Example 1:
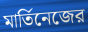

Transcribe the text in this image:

মার্তিনেজের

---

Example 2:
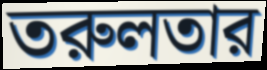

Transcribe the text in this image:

তরুলতার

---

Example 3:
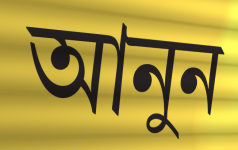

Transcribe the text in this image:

আনুন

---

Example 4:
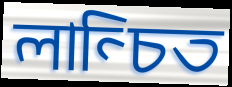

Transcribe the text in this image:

লান্চিত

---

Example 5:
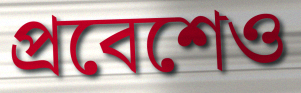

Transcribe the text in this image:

প্রবেশেও